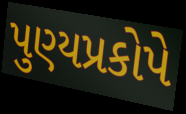
પુણ્યપ્રકોપે